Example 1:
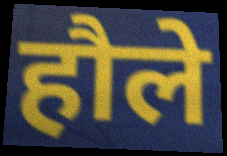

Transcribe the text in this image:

हौले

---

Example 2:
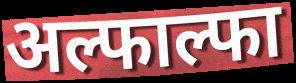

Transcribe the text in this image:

अल्फाल्फा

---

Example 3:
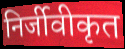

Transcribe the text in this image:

निर्जीवीकृत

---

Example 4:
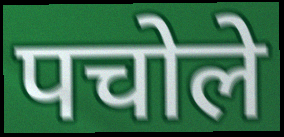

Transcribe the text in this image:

पचोले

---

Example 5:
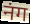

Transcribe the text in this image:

नंग